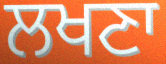
ਲਖਣਾ